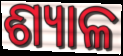
ଶ୍ୟାଳ